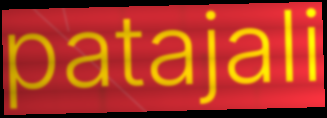
patajali